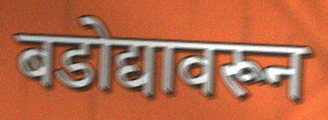
बडोद्यावरून